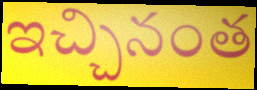
ఇచ్చినంత